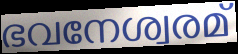
ഭവനേശ്വരമ്